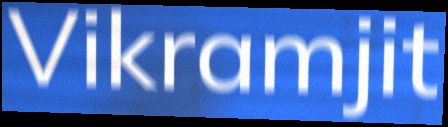
Vikramjit